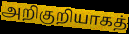
அறிகுறியாகத்